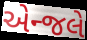
એન્જલે